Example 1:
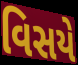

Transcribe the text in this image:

વિસયે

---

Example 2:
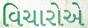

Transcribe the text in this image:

વિચારોએ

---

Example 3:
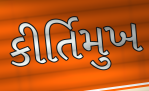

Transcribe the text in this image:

કીર્તિમુખ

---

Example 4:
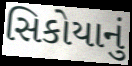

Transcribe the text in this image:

સિકોયાનું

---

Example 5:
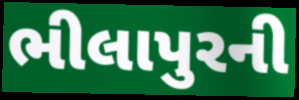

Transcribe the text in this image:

ભીલાપુરની